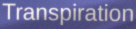
Transpiration